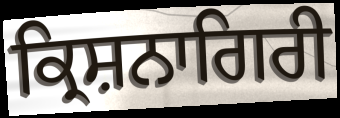
ਕ੍ਰਿਸ਼ਨਾਗਿਰੀ